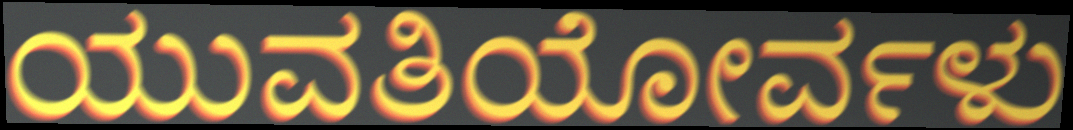
ಯುವತಿಯೋರ್ವಳು